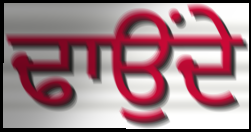
ਢਾਉਂਦੇ